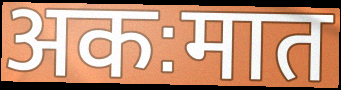
अकःमात